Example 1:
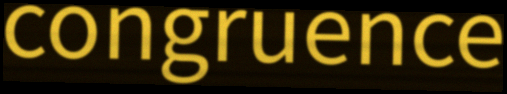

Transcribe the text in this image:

congruence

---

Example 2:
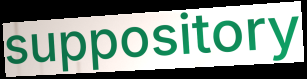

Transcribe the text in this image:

suppository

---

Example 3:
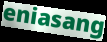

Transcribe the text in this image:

eniasang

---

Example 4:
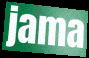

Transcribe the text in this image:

jama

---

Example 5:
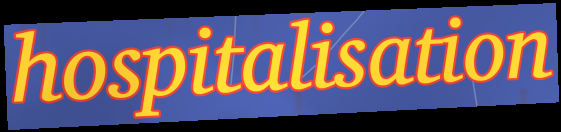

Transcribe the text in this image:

hospitalisation